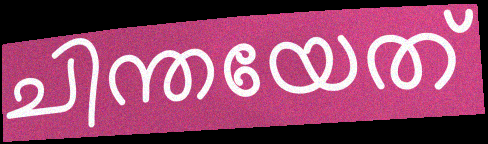
ചിന്തയേത്